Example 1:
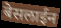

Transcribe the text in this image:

बेसलाईन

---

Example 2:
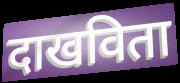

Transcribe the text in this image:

दाखविता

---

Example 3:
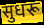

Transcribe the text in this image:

सुधरू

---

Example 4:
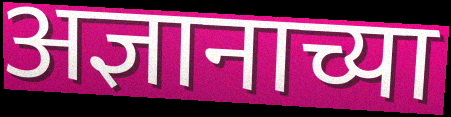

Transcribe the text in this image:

अज्ञानाच्या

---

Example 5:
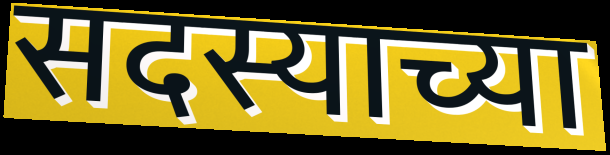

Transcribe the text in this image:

सदस्याच्या